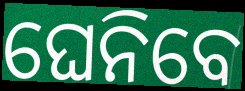
ଘେନିବେ